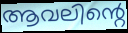
ആവലിന്റെ